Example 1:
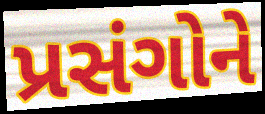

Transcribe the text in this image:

પ્રસંગોને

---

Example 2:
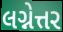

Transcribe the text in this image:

લગ્નેત્તર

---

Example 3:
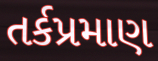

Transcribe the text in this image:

તર્કપ્રમાણ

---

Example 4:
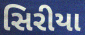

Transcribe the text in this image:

સિરીયા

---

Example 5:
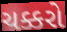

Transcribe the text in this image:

ચક્કરો